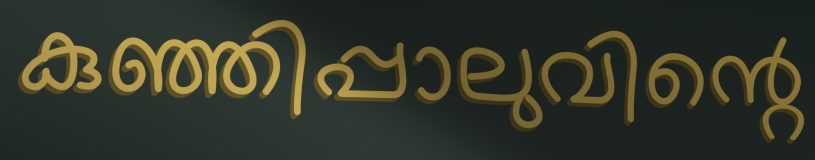
കുഞ്ഞിപ്പാലുവിന്റെ